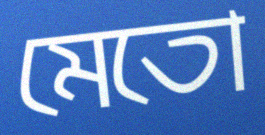
মেতো